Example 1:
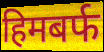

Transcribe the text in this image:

हिमबर्फ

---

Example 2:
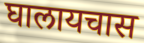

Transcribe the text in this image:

घालायचास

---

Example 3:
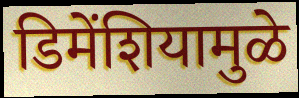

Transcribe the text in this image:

डिमेंशियामुळे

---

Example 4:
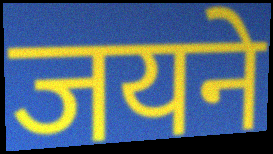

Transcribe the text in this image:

जयने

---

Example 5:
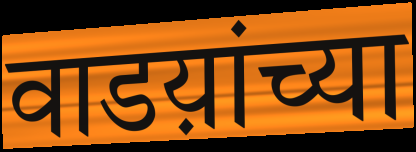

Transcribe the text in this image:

वाडय़ांच्या